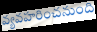
వ్యవహరించనుంది